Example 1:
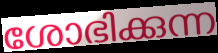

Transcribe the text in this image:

ശോഭിക്കുന്ന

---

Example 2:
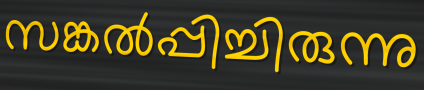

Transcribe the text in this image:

സങ്കൽപ്പിച്ചിരുന്നു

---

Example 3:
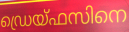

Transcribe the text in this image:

ഡ്രെയ്ഫസിനെ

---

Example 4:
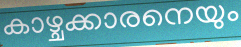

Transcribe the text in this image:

കാഴ്ചക്കാരനെയും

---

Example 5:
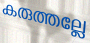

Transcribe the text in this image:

കരുത്തല്ലേ